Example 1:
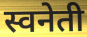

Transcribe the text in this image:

स्वनेती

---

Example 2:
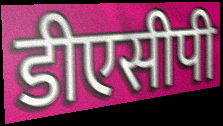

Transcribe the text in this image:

डीएसीपी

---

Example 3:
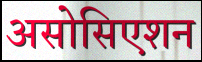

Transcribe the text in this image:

असोसिएशन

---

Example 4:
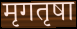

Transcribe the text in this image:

मृगतृषा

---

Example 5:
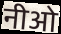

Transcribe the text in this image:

नीओ